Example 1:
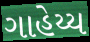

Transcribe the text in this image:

ગાહેય્ય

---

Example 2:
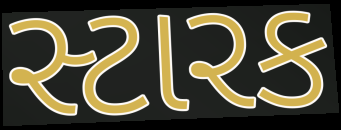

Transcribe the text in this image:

સ્ટારક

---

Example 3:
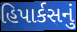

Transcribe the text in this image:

હિપાર્કસનું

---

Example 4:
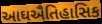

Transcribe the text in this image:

આઘઐતિહાસિક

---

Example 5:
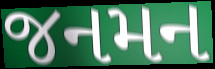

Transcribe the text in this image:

જનમન